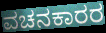
ವಚನಕಾರರ